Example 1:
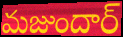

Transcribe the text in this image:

మజుందార్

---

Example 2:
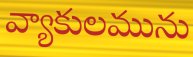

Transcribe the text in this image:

వ్యాకులమును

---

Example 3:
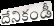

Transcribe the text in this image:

దేనికండీ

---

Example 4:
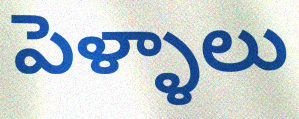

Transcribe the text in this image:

పెళ్ళాలు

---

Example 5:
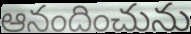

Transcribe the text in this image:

ఆనందించును